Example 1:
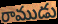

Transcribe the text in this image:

రాముడు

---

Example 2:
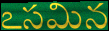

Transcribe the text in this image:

ఽసమిన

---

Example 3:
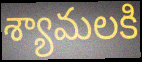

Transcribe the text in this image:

శ్యామలకి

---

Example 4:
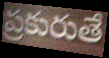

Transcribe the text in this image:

ప్రకురుతే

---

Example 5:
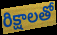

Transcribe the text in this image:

రిక్షాలతో